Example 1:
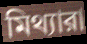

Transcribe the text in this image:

মিথ্যারা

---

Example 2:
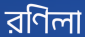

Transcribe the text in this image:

রণিলা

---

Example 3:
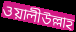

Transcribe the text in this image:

ওয়ালীউল্লাহ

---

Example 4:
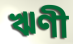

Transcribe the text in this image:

ঋণী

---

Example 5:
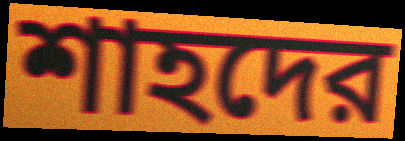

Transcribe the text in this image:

শাহদের